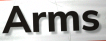
Arms